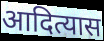
आदित्यास